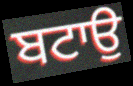
ਬਟਾਉ